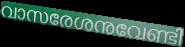
വാസരേശനുവേണ്ടി